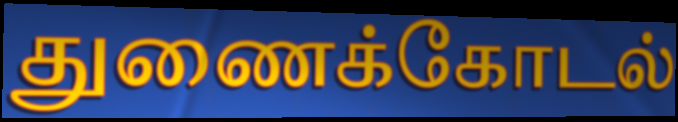
துணைக்கோடல்